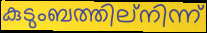
കുടുംബത്തില്നിന്ന്